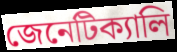
জেনেটিক্যালি